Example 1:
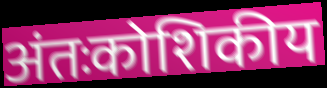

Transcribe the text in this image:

अंतःकोशिकीय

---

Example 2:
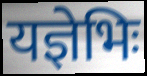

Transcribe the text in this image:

यज्ञेभिः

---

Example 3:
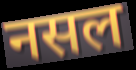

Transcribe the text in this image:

नसल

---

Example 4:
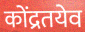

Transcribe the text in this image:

कोंद्रतयेव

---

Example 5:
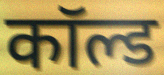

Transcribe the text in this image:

कॉल्ड